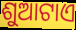
ଶୁଆଟାଏ